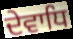
ਦੇਵਾਧਿ